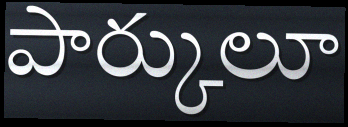
పార్కులూ